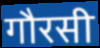
गौरसी